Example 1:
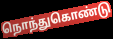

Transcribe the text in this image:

நொந்துகொண்டு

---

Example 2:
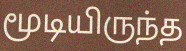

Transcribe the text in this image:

மூடியிருந்த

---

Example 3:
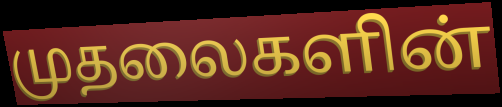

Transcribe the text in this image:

முதலைகளின்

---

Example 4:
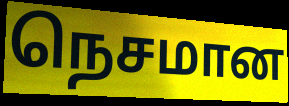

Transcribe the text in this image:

நெசமான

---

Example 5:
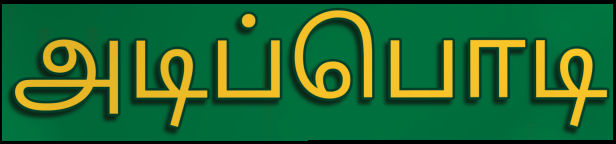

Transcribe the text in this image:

அடிப்பொடி